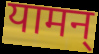
यामन्